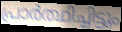
പ്രാർത്ഥിച്ചിട്ടും